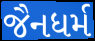
જૈનધર્મ